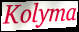
Kolyma